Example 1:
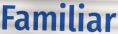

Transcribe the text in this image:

Familiar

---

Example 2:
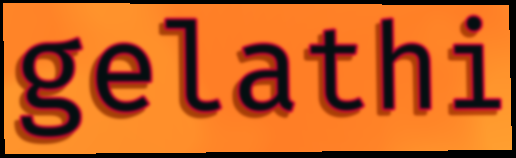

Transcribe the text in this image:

gelathi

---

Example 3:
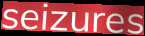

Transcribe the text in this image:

seizures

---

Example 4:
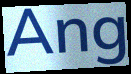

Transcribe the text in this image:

Ang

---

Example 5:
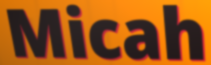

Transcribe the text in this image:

Micah